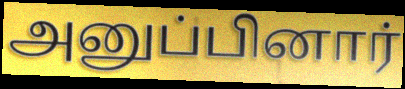
அனுப்பினார்